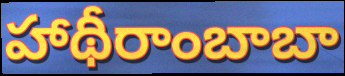
హాథీరాంబాబా